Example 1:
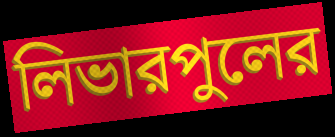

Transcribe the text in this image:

লিভারপুলের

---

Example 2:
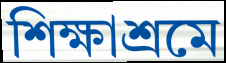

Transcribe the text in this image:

শিক্ষাশ্রমে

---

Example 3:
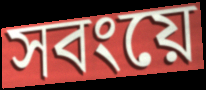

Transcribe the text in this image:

সবংয়ে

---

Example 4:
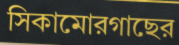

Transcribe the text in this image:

সিকামোরগাছের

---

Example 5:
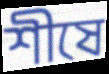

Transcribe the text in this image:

শীষে